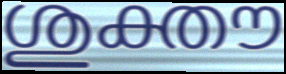
ശുക്തൗ